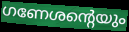
ഗണേശന്റെയും